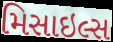
મિસાઇલ્સ